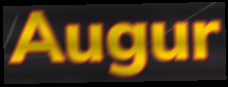
Augur